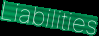
Liabilities